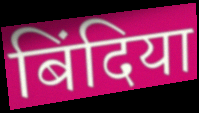
बिंदिया